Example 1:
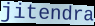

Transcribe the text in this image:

jitendra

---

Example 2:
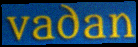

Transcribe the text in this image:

vadan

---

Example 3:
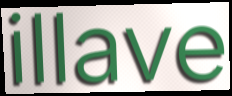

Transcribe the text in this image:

illave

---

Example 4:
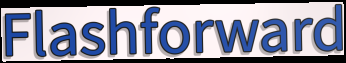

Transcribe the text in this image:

Flashforward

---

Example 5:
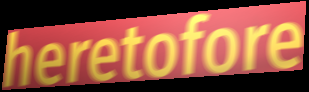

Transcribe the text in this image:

heretofore